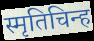
स्मृतिचिन्ह